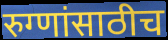
रुग्णांसाठीच